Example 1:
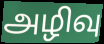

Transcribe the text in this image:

அழிவு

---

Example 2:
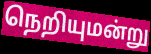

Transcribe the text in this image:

நெறியுமன்று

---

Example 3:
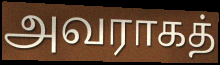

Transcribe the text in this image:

அவராகத்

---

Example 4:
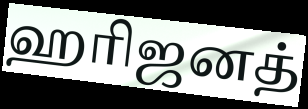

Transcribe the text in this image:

ஹரிஜனத்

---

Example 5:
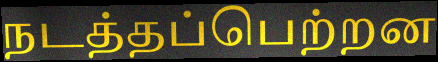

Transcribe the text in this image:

நடத்தப்பெற்றன